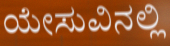
ಯೇಸುವಿನಲ್ಲಿ